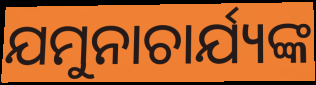
ଯମୁନାଚାର୍ଯ୍ୟଙ୍କ